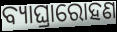
ବ୍ୟାଘ୍ରାରୋହଣ